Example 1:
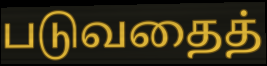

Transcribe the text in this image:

படுவதைத்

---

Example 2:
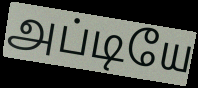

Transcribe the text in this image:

அப்டியே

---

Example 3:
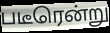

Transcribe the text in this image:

படீரென்று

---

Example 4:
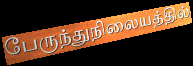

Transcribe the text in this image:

பேருந்துநிலையத்தில்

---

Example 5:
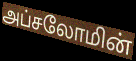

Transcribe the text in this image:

அப்சலோமின்